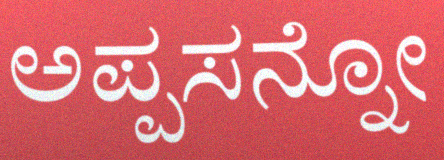
ಅಪ್ಪಸನ್ನೋ